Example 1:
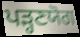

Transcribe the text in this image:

ਪੜ੍ਹਣਯੋਗ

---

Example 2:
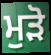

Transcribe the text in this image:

ਮੁਡ਼ੋ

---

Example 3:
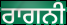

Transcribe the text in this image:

ਰਾਗਨੀ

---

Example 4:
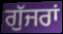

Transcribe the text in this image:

ਗੁੱਜਰਾਂ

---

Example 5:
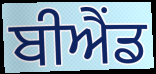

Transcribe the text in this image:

ਬੀਐਂਡ